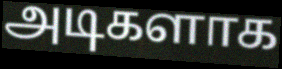
அடிகளாக